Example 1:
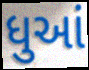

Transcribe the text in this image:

ધુઆં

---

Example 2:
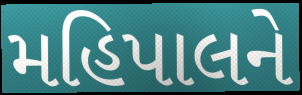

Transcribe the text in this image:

મહિપાલને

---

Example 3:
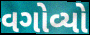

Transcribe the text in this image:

વગોવ્યો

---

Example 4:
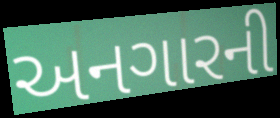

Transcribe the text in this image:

અનગારની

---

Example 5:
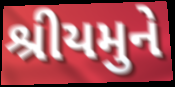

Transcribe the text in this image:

શ્રીયમુને